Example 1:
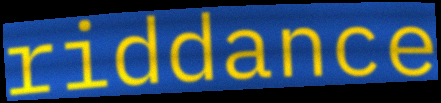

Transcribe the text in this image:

riddance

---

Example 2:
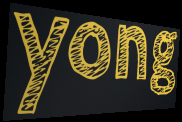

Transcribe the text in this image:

yong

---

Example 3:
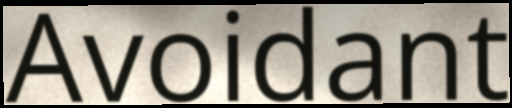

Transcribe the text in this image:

Avoidant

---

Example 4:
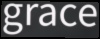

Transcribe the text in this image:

grace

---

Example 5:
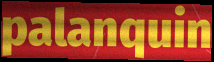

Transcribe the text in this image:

palanquin